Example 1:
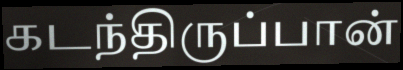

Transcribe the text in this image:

கடந்திருப்பான்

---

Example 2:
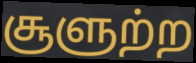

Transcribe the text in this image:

சூளுற்ற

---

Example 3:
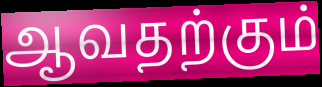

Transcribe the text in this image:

ஆவதற்கும்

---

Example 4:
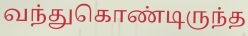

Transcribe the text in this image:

வந்துகொண்டிருந்த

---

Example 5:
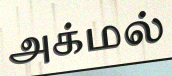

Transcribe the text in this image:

அக்மல்